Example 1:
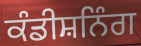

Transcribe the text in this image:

ਕੰਡੀਸ਼ਨਿੰਗ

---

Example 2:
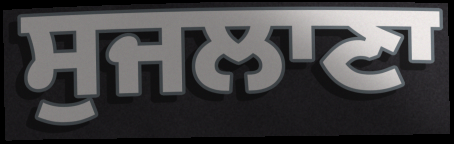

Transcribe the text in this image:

ਸੁਜਲਾਣਾ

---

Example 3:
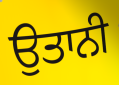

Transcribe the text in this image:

ਉਤਾਨੀ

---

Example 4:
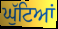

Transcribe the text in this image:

ਘੁੱਟਿਆਂ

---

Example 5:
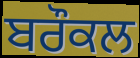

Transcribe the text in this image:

ਬਰੌਕਲ